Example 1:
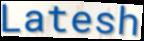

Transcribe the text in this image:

Latesh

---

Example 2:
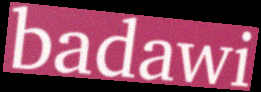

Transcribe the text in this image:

badawi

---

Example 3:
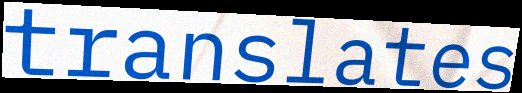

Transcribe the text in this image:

translates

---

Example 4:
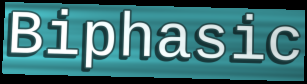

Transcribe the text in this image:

Biphasic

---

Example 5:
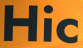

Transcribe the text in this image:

Hic